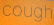
cough